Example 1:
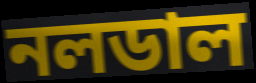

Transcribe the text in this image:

নলডাল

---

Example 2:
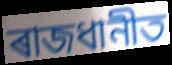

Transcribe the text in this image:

ৰাজধানীত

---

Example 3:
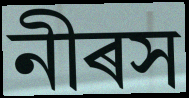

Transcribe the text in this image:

নীৰস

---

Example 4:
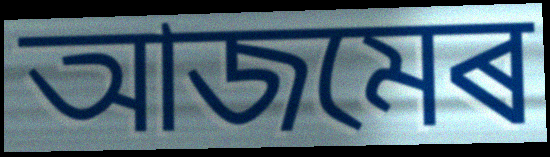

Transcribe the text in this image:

আজমেৰ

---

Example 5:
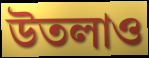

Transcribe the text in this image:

উতলাও